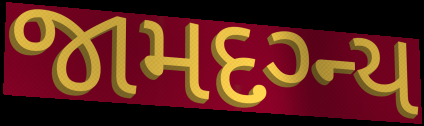
જામદગ્ન્ય